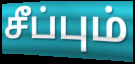
சீப்பும்